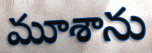
మూశాను